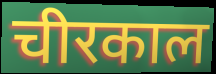
चीरकाल